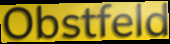
Obstfeld